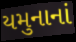
યમુનાનાં